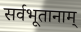
सर्वभूतानाम्